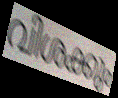
വിശക്കും